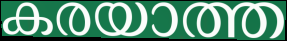
കരയാത്ത